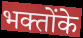
भक्तोंके